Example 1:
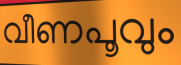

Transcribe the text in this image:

വീണപൂവും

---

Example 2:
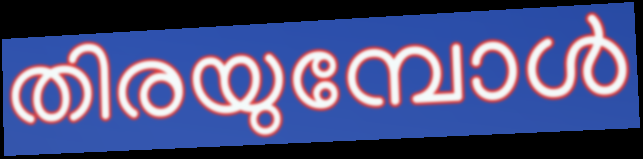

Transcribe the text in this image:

തിരയുമ്പോൾ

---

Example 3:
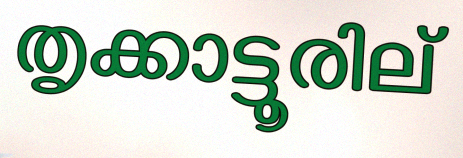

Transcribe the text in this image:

തൃക്കാട്ടൂരില്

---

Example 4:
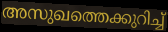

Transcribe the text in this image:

അസുഖത്തെക്കുറിച്ച്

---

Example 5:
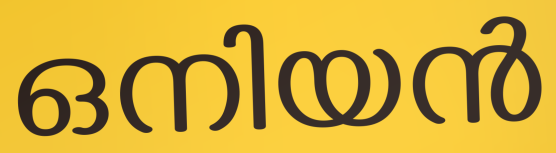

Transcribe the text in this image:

ഒനിയൻ